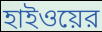
হাইওয়ের